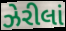
ઝેરીલાં